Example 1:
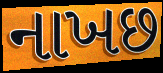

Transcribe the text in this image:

નાખછ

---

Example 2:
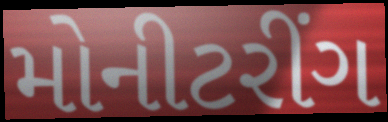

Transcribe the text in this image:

મોનીટરીંગ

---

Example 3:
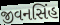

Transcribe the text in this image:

જીવનસિંહ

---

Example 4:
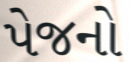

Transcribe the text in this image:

પેજનો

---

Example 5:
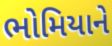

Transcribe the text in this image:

ભોમિયાને